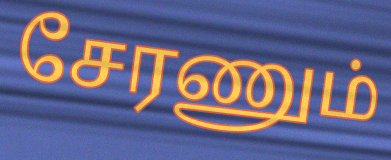
சேரணும்